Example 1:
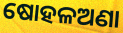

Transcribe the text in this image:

ଷୋହଳଅଣା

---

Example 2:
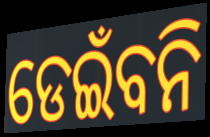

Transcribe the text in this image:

ଡେଇଁବନି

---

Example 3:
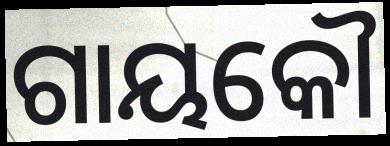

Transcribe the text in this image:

ଗାୟକୌ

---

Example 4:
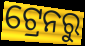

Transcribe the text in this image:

ଟ୍ରେନରୁ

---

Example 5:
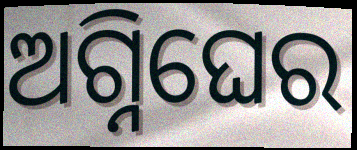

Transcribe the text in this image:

ଅଗ୍ନିଘେର